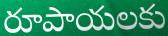
రూపాయలకు